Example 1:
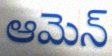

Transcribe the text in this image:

ఆమెన్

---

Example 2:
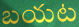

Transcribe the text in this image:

బయట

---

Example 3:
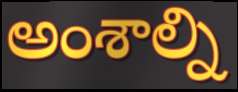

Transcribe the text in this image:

అంశాల్ని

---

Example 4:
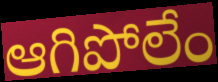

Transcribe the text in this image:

ఆగిపోలేం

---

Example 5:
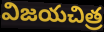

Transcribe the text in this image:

విజయచిత్ర